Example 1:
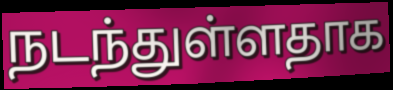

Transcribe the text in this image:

நடந்துள்ளதாக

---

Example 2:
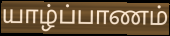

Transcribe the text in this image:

யாழ்ப்பாணம்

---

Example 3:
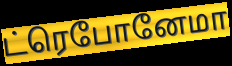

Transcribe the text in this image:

ட்ரெபோனேமா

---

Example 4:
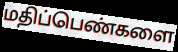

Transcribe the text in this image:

மதிப்பெண்களை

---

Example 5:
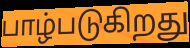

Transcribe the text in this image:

பாழ்படுகிறது